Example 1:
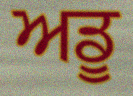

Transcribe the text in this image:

ਅਡੂ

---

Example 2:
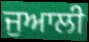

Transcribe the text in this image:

ਜੁਆਲੀ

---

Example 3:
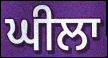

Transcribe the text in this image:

ਘੀਲਾ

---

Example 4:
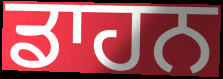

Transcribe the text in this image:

ਡਾਹਨ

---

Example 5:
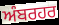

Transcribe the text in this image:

ਅੰਬਰਹਰ